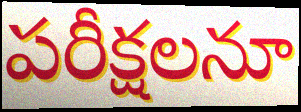
పరీక్షలనూ